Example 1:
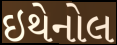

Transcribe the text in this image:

ઇથેનોલ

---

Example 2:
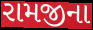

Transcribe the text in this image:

રામજીના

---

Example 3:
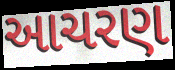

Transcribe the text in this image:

આચરણ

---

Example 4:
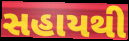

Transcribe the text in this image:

સહાયથી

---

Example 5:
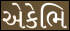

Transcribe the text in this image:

એકેભિ